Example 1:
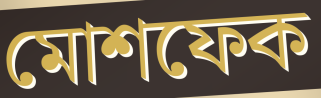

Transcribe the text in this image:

মোশফেক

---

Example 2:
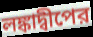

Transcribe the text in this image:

লঙ্কাদ্বীপের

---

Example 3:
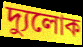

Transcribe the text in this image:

দ্যুলোক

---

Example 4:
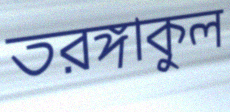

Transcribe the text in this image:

তরঙ্গাকুল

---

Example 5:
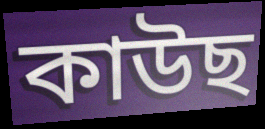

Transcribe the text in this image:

কাউছ